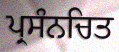
ਪ੍ਰਸੰਨਚਿਤ